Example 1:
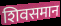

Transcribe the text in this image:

शिवसमान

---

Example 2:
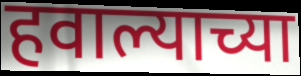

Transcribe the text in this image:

हवाल्याच्या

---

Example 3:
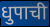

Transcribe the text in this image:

धुपाची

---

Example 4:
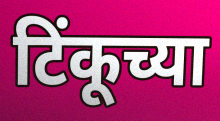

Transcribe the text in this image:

टिंकूच्या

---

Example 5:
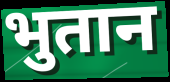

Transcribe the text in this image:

भुतान